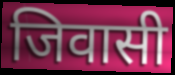
जिवासी